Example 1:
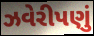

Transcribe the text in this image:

ઝવેરીપણું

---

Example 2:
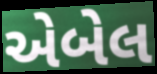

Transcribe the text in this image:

એબેલ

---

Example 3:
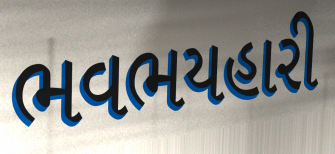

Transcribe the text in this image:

ભવભયહારી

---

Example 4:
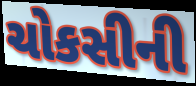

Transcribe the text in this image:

ચોકસીની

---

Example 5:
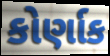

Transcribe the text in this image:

કોર્ણાક